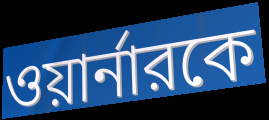
ওয়ার্নারকে